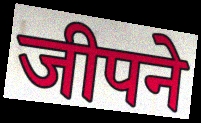
जीपने